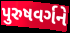
પુરુષવર્ગને